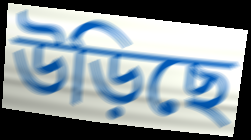
উড়িছে